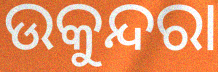
ଉକୁନ୍ଦରା